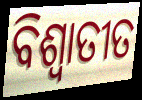
ବିଶ୍ୱାତୀତ